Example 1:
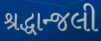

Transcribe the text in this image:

શ્રદ્ધાન્જલી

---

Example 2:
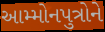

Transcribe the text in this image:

આમ્મોનપુત્રોને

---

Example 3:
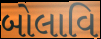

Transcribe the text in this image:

બોલાવિ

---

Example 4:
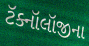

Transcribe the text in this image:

ટૅક્નૉલૉજીના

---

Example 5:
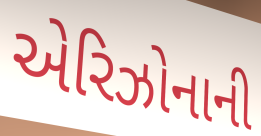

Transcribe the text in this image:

એરિઝોનાની